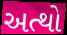
અત્થો